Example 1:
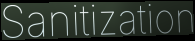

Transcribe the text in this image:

Sanitization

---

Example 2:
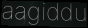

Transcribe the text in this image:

aagiddu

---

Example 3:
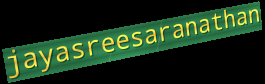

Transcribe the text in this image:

jayasreesaranathan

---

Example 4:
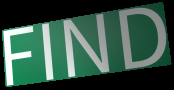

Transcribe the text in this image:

FIND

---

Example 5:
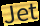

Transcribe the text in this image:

Jet